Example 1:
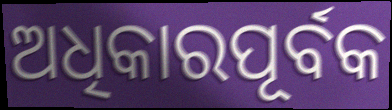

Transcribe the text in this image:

ଅଧିକାରପୂର୍ବକ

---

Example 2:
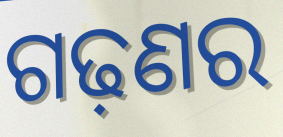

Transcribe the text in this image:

ଗଢ଼ଣର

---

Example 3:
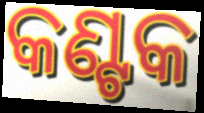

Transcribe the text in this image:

କଣ୍ଟକ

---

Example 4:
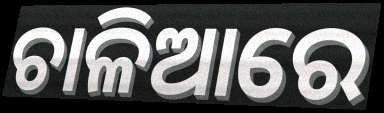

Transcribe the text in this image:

ଚାଳିଆରେ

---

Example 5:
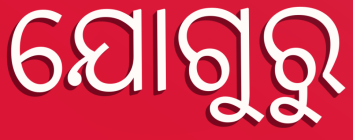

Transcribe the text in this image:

ଯୋଗୁରୁ